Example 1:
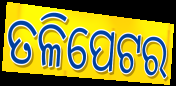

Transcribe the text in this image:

ତଳିପେଟର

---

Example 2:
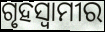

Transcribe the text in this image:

ଗୃହସ୍ୱାମୀର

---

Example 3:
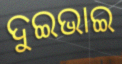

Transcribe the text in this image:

ଦୁଇଭାଇ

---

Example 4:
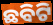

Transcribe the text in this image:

ଛବିଟି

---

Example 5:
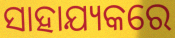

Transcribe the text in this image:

ସାହାଯ୍ୟକରେ